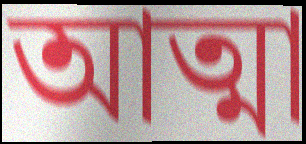
আত্মা